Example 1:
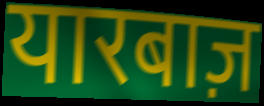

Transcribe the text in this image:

यारबाज़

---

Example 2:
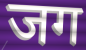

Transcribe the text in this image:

जग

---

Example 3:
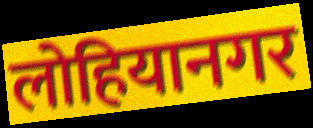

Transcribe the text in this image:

लोहियानगर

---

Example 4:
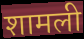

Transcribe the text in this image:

शामली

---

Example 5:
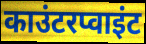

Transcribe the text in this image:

काउंटरप्वाइंट